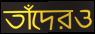
তাঁদেরও